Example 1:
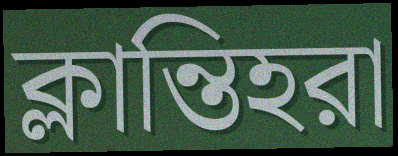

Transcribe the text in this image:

ক্লান্তিহরা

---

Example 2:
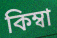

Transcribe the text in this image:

কিম্বা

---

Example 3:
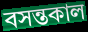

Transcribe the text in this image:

বসন্তকাল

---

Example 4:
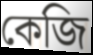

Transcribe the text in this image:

কেজি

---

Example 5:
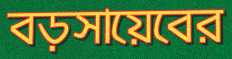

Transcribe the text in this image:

বড়সায়েবের